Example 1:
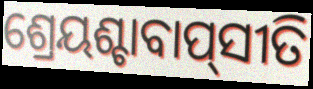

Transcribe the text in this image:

ଶ୍ରେୟଶ୍ଚାବାପ୍‌ସୀତି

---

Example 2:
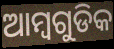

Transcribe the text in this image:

ଆମ୍ବଗୁଡିକ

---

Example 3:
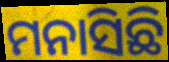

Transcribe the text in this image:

ମନାସିଛି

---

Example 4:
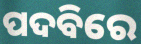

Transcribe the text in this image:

ପଦବିରେ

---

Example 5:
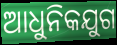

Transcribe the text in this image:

ଆଧୁନିକଯୁଗ